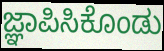
ಜ್ಞಾಪಿಸಿಕೊಂಡು